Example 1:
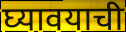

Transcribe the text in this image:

घ्यावयाची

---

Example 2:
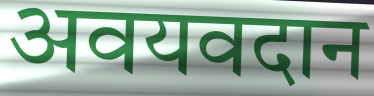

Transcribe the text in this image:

अवयवदान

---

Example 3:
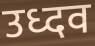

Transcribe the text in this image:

उध्दव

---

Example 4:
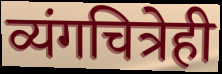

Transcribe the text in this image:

व्यंगचित्रेही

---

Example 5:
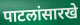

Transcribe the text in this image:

पाटलांसारखे